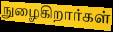
நுழைகிறார்கள்